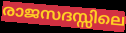
രാജസദസ്സിലെ